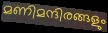
മണിമന്ദിരങ്ങളും